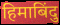
हिमाबिंदु